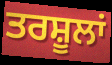
ਤਰਸ਼ੂਲਾਂ